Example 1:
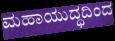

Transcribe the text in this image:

ಮಹಾಯುದ್ಧದಿಂದ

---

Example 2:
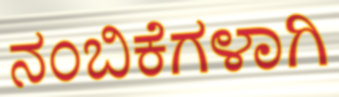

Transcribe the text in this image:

ನಂಬಿಕೆಗಳಾಗಿ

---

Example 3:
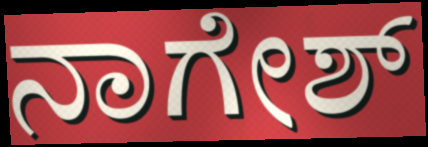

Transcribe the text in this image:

ನಾಗೇಶ್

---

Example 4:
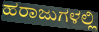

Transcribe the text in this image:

ಹರಾಜುಗಳಲ್ಲಿ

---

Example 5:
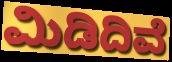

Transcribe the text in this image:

ಮಿಡಿದಿವೆ